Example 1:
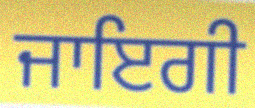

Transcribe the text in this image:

ਜਾਇਗੀ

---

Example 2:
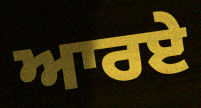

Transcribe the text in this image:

ਆਰਏ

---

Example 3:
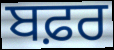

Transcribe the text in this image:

ਬਫ਼ਰ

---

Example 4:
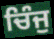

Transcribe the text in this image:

ਚਿੰਜੁ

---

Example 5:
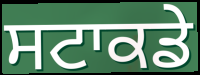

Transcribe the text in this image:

ਸਟਾਕਡੇ